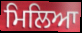
ਮਿਲਿਆ